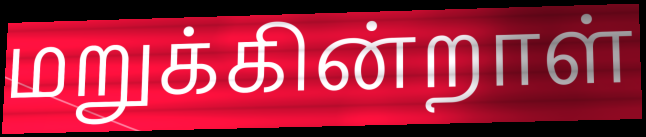
மறுக்கின்றாள்